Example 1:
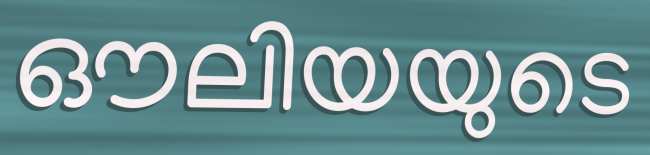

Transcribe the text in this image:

ഔലിയയുടെ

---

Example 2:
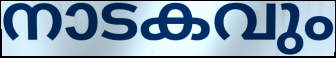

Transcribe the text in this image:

നാടകവും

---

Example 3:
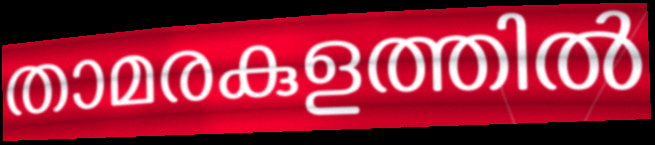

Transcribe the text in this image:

താമരകുളത്തിൽ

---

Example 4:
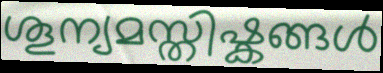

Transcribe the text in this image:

ശൂന്യമസ്തിഷ്കങ്ങൾ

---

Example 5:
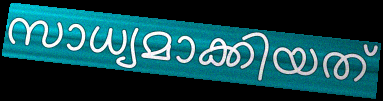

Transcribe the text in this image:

സാധ്യമാക്കിയത്